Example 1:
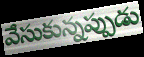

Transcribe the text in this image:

వేసుకున్నప్పుడు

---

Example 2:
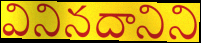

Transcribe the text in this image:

వినినదానిని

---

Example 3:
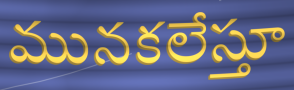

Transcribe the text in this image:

మునకలేస్తూ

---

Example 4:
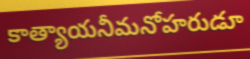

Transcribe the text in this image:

కాత్యాయనీమనోహరుడూ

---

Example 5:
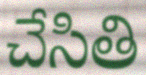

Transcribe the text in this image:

చేసితి